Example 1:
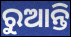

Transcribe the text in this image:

ରୁଆନ୍ତି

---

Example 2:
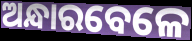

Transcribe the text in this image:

ଅନ୍ଧାରବେଳେ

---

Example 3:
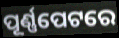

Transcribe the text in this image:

ପୂର୍ଣ୍ଣପେଟରେ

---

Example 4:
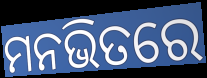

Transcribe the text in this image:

ମନଭିତରେ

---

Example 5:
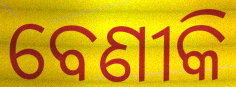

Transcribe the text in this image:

ବେଣୀକି